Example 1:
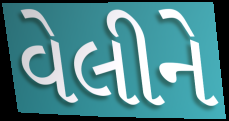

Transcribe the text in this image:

વેલીને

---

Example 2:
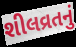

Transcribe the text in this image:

શીલવ્રતનું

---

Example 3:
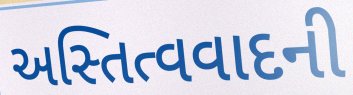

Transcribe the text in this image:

અસ્તિત્વવાદની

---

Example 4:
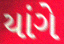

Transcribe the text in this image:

યાંગે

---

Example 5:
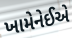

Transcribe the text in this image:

ખામેનેઈએ